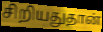
சிறியதுதான்